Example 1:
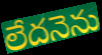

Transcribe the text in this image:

లేదనెను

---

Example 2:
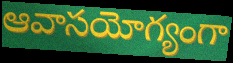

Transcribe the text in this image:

ఆవాసయోగ్యంగా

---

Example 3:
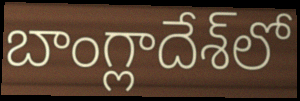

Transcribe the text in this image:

బాంగ్లాదేశ్‌లో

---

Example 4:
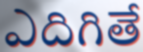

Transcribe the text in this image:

ఎదిగితే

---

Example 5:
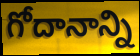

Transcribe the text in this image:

గోదానాన్ని